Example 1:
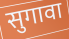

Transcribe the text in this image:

सुगावा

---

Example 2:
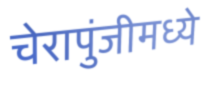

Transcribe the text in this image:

चेरापुंजीमध्ये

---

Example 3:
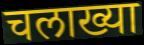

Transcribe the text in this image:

चलाख्या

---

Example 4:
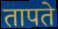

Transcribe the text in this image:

तापते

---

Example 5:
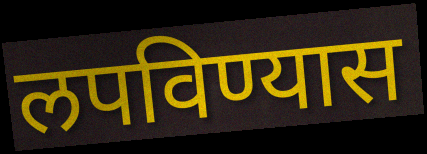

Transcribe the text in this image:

लपविण्यास